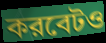
করবেটও